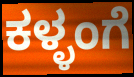
ಕಳ್ಳಂಗೆ